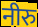
नीरु